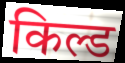
किल्ड